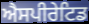
ਐਸਪੀਰੇਟਿਡ